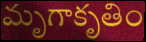
మృగాకృతిం